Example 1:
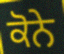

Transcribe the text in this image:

ਕੋਨੇ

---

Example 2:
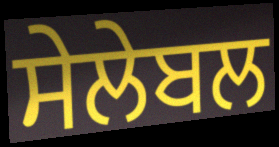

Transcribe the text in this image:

ਸੇਲੇਬਲ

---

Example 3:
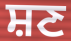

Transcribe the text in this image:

ਸ਼ਣ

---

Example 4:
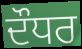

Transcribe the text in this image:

ਦੌਧਰ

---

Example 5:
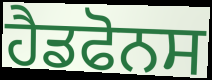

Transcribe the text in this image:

ਹੈਡਫੋਨਸ